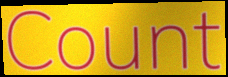
Count